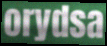
orydsa